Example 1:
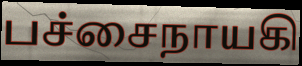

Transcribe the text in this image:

பச்சைநாயகி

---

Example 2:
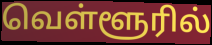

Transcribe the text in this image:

வெள்ளூரில்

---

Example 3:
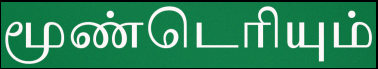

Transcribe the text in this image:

மூண்டெரியும்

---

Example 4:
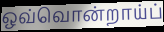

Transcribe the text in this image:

ஒவ்வொன்றாய்ப்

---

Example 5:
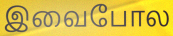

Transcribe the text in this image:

இவைபோல